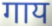
गाय